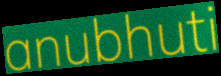
anubhuti